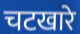
चटखारे